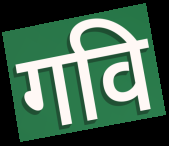
गवि